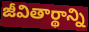
జీవితార్థాన్ని